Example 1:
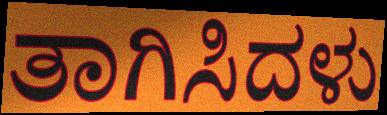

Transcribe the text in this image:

ತಾಗಿಸಿದಳು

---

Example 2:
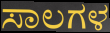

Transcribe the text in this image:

ಸಾಲಗಳ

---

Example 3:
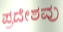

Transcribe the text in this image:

ಪ್ರದೇಶವು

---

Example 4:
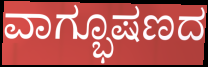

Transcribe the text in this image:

ವಾಗ್ಭೂಷಣದ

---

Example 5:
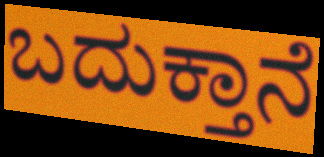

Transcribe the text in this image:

ಬದುಕ್ತಾನೆ